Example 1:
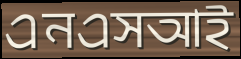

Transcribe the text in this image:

এনএসআই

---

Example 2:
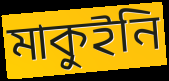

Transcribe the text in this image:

মাকুইনি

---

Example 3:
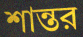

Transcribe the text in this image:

শান্তর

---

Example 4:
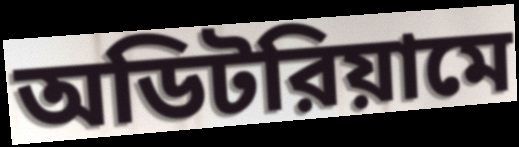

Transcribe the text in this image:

অডিটরিয়ামে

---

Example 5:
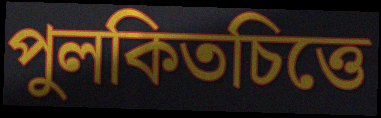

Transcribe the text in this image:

পুলকিতচিত্তে